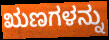
ಋಣಗಳನ್ನು